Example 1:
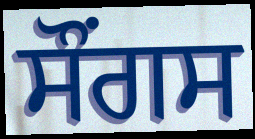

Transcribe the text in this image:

ਸੌਂਗਸ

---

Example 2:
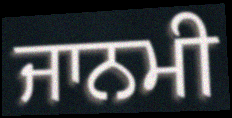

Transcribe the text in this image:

ਜਾਨਮੀ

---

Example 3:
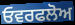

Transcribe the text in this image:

ਓਵਰਫਲੋਅ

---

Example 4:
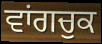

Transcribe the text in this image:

ਵਾਂਗਚੁਕ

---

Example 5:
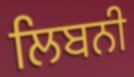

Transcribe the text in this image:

ਲਿਬਨੀ